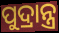
ପୁଦ୍ରାନ୍ତ୍ର